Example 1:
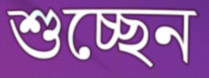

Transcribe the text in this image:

শুচ্ছেন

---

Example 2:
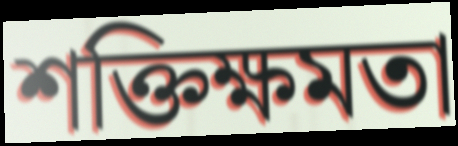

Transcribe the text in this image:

শক্তিক্ষমতা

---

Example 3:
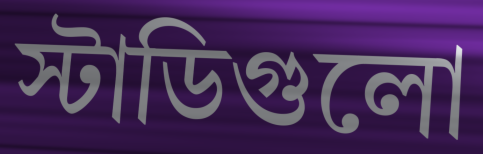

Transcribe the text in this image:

স্টাডিগুলো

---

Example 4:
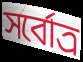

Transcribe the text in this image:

সর্বোত্র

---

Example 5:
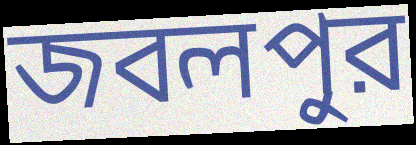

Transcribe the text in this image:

জবলপুর